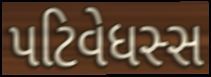
પટિવેધસ્સ